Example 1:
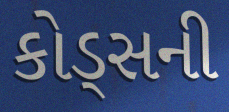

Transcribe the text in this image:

કોડ્સની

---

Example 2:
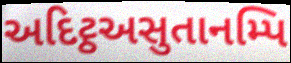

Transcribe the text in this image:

અદિટ્ઠઅસુતાનમ્પિ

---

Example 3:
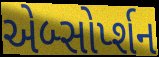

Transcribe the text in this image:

એબ્સોર્પ્શન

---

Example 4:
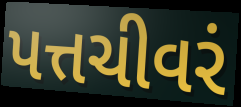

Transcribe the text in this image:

પત્તચીવરં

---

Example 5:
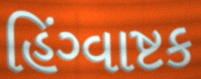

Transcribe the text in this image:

હિંગ્વાષ્ટક